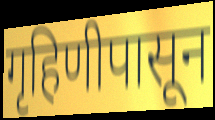
गृहिणीपासून